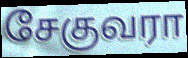
சேகுவரா